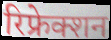
रिफ्रेक्शन